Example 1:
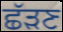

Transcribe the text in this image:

ਛੱੜਣ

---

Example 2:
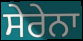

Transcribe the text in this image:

ਸੇਰੇਨਾ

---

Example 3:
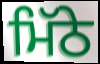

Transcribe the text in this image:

ਮਿੱਠੇ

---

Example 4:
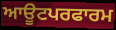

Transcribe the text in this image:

ਆਊਟਪਰਫਾਰਮ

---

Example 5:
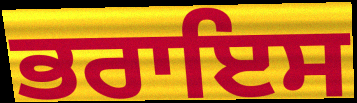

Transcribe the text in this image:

ਭਰਾਇਸ